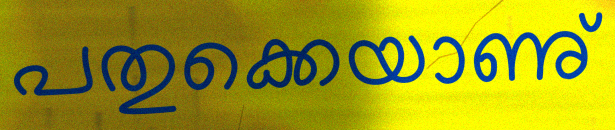
പതുക്കെയാണു്